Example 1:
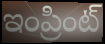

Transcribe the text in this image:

ఇంప్రింట్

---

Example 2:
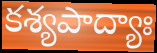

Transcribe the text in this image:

కశ్యపాద్యాః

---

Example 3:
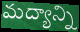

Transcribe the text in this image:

మద్యాన్ని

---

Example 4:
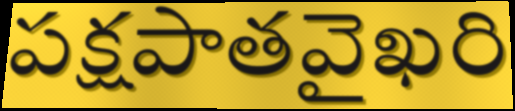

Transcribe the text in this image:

పక్షపాతవైఖరి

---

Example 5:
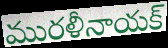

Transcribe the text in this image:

మురళీనాయక్